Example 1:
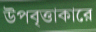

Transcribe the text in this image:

উপবৃত্তাকারে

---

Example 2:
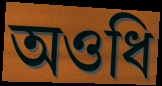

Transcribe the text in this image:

অওধি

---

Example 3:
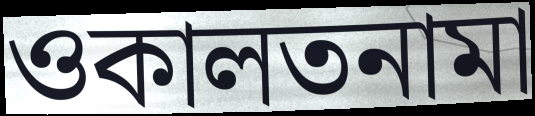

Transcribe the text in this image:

ওকালতনামা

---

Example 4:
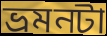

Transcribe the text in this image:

ভ্রমনটা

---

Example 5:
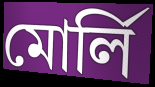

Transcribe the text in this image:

মোর্লি